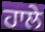
ਹਾਲੇ